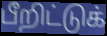
பீறிட்டுக்